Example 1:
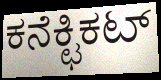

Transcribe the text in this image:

ಕನೆಕ್ಟಿಕಟ್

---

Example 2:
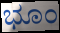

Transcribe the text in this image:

ಭೂಂ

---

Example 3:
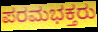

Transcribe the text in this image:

ಪರಮಭಕ್ತರು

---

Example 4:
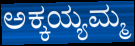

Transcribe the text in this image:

ಅಕ್ಕಯ್ಯಮ್ಮ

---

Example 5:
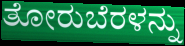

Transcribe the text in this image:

ತೋರುಬೆರಳನ್ನು